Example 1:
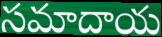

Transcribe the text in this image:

సమాదాయ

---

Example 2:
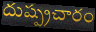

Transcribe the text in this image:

దుష్ప్రచారం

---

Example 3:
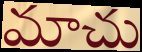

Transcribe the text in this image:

మాచు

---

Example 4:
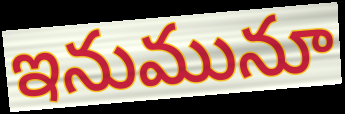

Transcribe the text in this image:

ఇనుమునూ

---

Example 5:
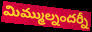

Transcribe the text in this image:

మిమ్ముల్నందర్నీ